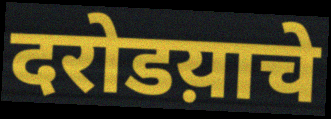
दरोडय़ाचे